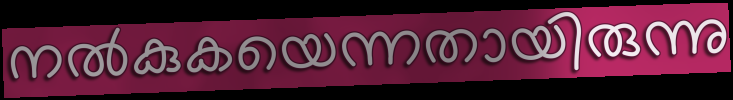
നൽകുകയെന്നതായിരുന്നു